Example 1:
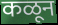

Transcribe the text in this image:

कळून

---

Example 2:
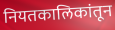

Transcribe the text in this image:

नियतकालिकांतून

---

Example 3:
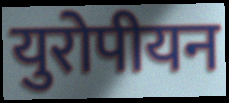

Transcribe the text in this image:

युरोपीयन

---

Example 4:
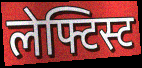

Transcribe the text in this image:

लेफ्टिस्ट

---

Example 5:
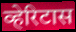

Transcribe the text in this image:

व्हेरिटास